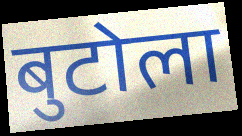
बुटोला